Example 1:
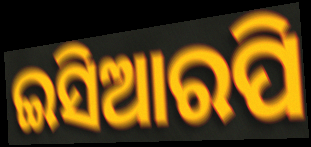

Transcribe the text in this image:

ଇସିଆରପି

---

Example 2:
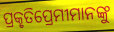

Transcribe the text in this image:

ପ୍ରକୃତିପ୍ରେମୀମାନଙ୍କୁ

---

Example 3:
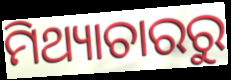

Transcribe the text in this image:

ମିଥ୍ୟାଚାରରୁ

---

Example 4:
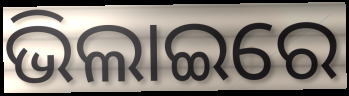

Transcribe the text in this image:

ଭିଲାଇରେ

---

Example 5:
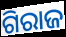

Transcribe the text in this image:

ଗିରାଜ